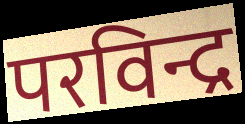
परविन्द्र